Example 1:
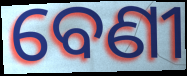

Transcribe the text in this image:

ବେଣୀ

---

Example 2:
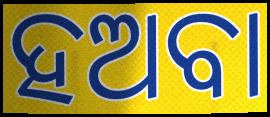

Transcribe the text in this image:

ହଅବା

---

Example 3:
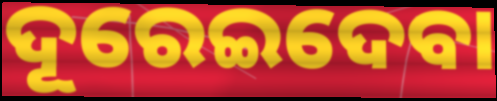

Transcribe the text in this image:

ଦୂରେଇଦେବା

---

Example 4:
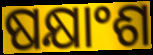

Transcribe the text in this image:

ଷକ୍ଷାଂଶ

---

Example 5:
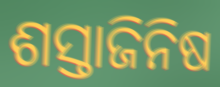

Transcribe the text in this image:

ଶସ୍ତାଜିନିଷ